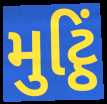
મુટ્ઠિં